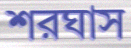
শরঘাস